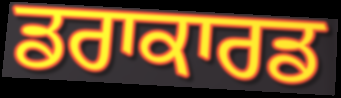
ਡਰਾਕਾਰਡ